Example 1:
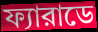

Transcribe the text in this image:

ফ্যারাডে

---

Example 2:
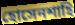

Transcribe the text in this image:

হোসেনশাহি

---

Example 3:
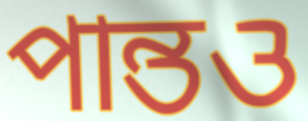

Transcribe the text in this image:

পান্তও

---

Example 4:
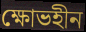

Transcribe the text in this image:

ক্ষোভহীন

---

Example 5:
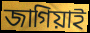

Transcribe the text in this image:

জাগিয়াই